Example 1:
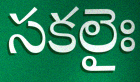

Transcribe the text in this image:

సకలైః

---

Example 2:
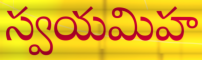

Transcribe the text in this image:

స్వయమిహ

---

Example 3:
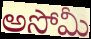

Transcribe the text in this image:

అసోమీ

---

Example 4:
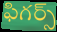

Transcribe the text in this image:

ఫిగర్స్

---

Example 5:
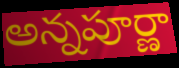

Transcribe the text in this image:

అన్నపూర్ణా